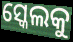
ସ୍କେଲକୁ